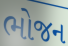
ભોજન